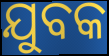
ଯୁବକ